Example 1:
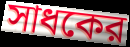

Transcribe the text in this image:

সাধকের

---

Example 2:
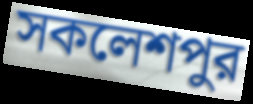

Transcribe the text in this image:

সকলেশপুর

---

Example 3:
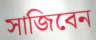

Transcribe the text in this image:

সাজিবেন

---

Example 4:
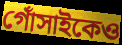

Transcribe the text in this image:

গোঁসাইকেও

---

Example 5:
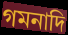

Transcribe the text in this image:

গমনাদি